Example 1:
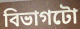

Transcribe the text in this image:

বিভাগটো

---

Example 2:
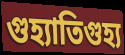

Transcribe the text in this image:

গুহ্যাতিগুহ্য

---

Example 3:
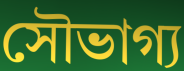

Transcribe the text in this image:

সৌভাগ্য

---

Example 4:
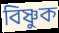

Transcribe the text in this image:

বিষ্ণুক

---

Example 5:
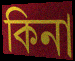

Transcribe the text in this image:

কিনা